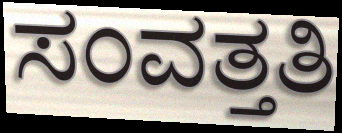
ಸಂವತ್ತತಿ